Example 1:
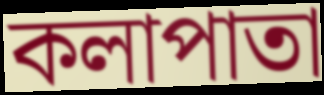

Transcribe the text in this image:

কলাপাতা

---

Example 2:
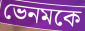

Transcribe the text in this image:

ভেনমকে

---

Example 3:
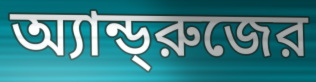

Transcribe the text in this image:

অ্যান্ড্‌রুজের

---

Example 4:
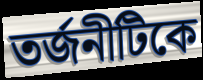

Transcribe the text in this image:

তর্জনীটিকে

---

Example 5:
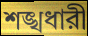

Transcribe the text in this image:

শঙ্খধারী